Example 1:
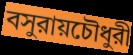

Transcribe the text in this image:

বসুরায়চৌধুরী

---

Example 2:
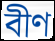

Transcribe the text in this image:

বীণ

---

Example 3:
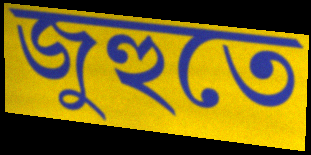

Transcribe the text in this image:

জুহুতে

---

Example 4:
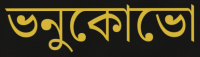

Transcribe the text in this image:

ভনুকোভো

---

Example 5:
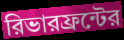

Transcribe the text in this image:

রিভারফ্রন্টের